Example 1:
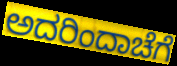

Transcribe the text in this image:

ಅದರಿಂದಾಚೆಗೆ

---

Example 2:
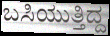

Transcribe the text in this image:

ಬಸಿಯುತ್ತಿದ್ದ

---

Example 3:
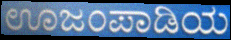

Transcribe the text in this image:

ಊಜಂಪಾಡಿಯ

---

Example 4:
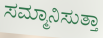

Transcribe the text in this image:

ಸಮ್ಮಾನಿಸುತ್ತಾ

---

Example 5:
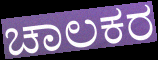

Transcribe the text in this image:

ಚಾಲಕರ